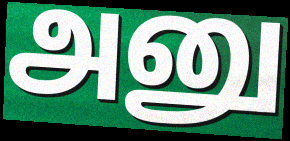
அனு